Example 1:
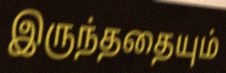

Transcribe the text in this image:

இருந்ததையும்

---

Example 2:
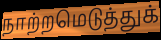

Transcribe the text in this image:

நாற்றமெடுத்துக்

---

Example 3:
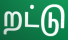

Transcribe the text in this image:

றட்டு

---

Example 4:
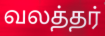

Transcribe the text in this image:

வலத்தர்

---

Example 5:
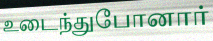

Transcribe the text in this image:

உடைந்துபோனார்